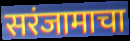
सरंजामाचा